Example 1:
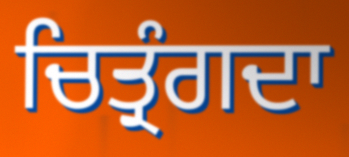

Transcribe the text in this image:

ਚਿਤ੍ਰੰਗਦਾ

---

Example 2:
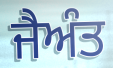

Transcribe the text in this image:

ਜੈਅੰਤ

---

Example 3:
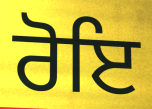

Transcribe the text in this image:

ਰੋਇ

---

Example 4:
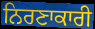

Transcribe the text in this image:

ਨਿਰਣਾਕਾਰੀ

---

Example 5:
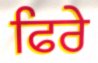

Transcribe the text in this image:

ਫਿਰੇ